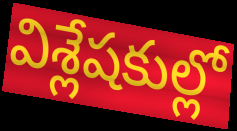
విశ్లేషకుల్లో